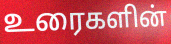
உரைகளின்